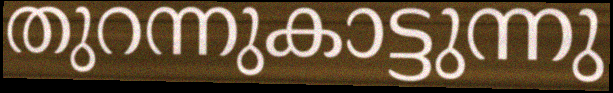
തുറന്നുകാട്ടുന്നു